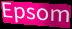
Epsom